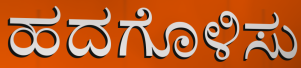
ಹದಗೊಳಿಸು